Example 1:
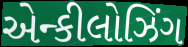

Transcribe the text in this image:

એન્કીલોઝિંગ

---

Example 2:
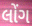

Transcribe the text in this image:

લોંગ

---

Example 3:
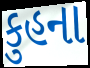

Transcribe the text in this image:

કુહના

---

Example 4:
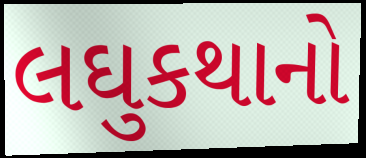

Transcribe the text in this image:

લઘુકથાનો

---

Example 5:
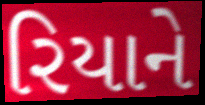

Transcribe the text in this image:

રિયાને